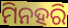
ମିନହରି